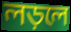
লড়লে